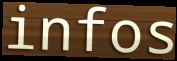
infos